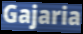
Gajaria